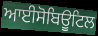
ਆਈਸੋਬਿਊਟਿਲ